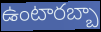
ఉంటారబ్బా